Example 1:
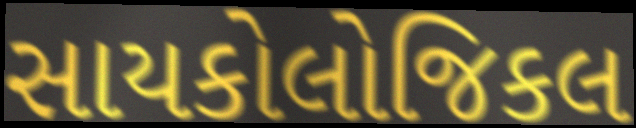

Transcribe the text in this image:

સાયકોલોજિકલ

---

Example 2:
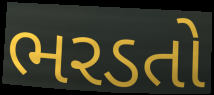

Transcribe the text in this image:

ભરડતો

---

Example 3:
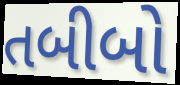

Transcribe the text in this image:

તબીબો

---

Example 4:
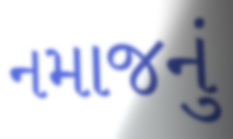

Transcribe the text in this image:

નમાજનું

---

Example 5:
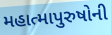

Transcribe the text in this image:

મહાત્માપુરુષોની